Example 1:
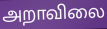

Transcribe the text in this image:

அறாவிலை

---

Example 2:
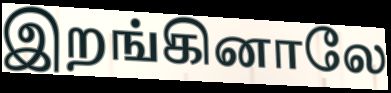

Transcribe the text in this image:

இறங்கினாலே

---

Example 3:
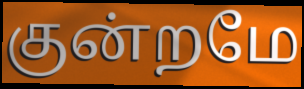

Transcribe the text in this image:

குன்றமே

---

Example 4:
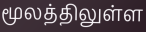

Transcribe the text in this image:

மூலத்திலுள்ள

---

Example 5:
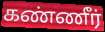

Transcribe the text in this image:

கண்ணீர்